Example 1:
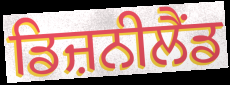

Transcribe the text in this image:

ਡਿਜ਼ਨੀਲੈਂਡ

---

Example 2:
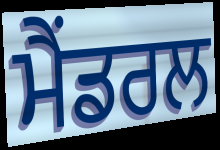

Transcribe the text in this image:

ਮੈਂਡਰਲ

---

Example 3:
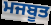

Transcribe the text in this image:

ਮਜਬੂਤ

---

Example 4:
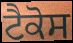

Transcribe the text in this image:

ਟੈਕੋਸ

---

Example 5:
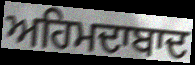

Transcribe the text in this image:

ਅਹਿਮਦਾਬਾਦ